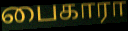
பைகாரா